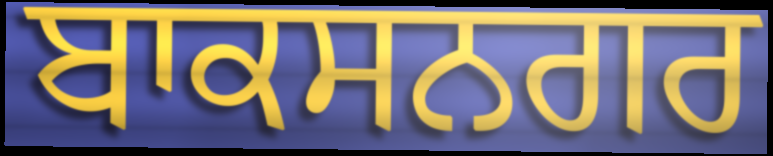
ਬਾਕਸਨਗਰ